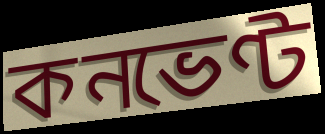
কনভেণ্ট